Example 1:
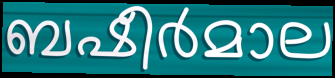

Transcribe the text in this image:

ബഷീർമാല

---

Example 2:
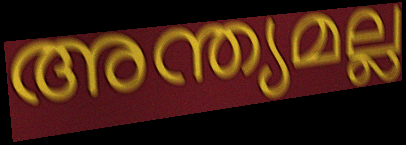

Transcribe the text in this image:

അന്ത്യമല്ല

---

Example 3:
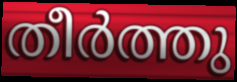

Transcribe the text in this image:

തീർത്തു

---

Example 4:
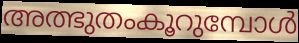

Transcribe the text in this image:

അത്ഭുതംകൂറുമ്പോൾ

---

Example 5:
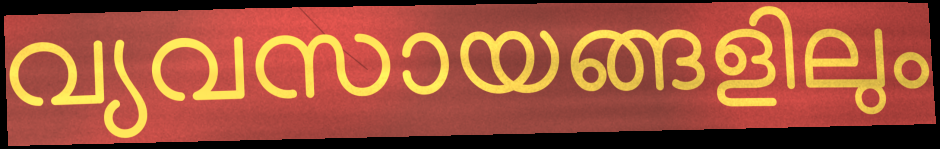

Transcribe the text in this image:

വ്യവസായങ്ങളിലും